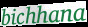
bichhana